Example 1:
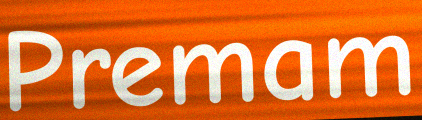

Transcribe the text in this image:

Premam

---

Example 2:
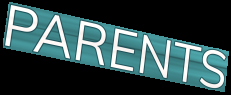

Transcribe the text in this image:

PARENTS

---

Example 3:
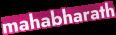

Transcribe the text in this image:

mahabharath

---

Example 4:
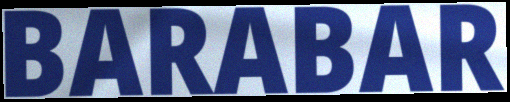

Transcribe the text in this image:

BARABAR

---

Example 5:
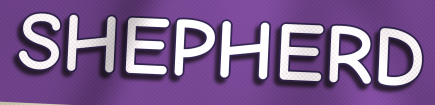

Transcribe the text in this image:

SHEPHERD